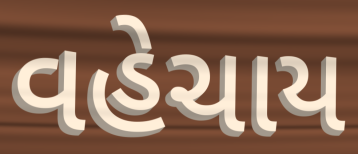
વહેચાય